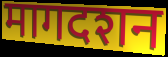
मागदशन